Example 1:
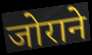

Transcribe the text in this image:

जोराने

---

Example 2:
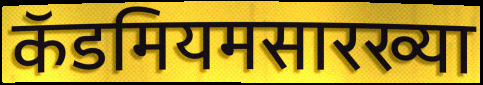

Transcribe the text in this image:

कॅडमियमसारख्या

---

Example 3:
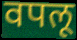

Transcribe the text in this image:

वपलू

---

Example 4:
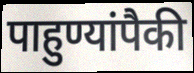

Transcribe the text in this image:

पाहुण्यांपैकी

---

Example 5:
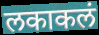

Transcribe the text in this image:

लकाकलं